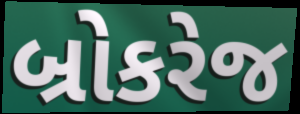
બ્રોકરેજ